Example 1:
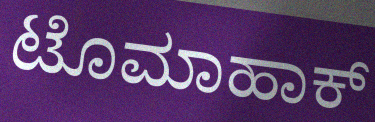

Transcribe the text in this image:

ಟೊಮಾಹಾಕ್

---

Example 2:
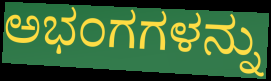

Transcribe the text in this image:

ಅಭಂಗಗಳನ್ನು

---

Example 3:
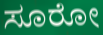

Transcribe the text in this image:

ಸೂರೋ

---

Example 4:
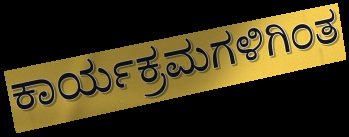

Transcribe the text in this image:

ಕಾರ್ಯಕ್ರಮಗಳಿಗಿಂತ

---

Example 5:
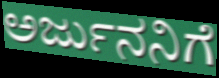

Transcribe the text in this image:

ಅರ್ಜುನನಿಗೆ